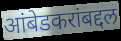
आंबेडकरांबद्दल